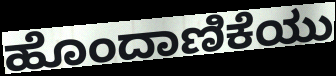
ಹೊಂದಾಣಿಕೆಯು